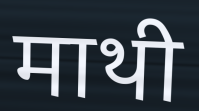
माथी